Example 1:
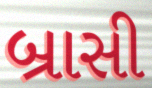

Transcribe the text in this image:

બ્રાસી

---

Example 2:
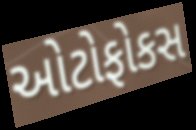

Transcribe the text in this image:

ઓટોફોકસ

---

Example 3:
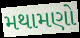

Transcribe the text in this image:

મથામણો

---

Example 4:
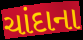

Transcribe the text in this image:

ચાંદાના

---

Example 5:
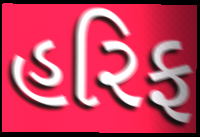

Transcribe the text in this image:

હરિફ